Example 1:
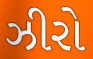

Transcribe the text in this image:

ઝીરો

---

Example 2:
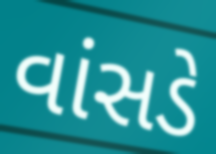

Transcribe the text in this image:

વાંસડે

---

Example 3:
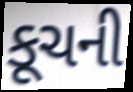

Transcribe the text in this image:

કૂચની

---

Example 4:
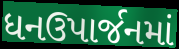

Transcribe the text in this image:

ધનઉપાર્જનમાં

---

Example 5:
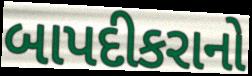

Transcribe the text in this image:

બાપદીકરાનો